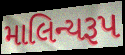
માલિન્યરૂપ